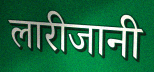
लारीजानी